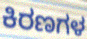
ಕಿರಣಗಳ